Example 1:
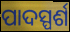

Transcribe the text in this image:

ପାଦସ୍ପର୍ଶ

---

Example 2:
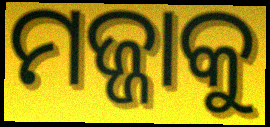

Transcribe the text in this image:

ମଜ୍ଜାକୁ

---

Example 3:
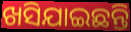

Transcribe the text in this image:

ଖସିଯାଇଛନ୍ତି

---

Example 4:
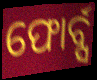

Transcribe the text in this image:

ଫୋର୍ବ୍ସ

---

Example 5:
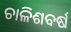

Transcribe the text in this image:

ଚାଳିଶବର୍ଷ